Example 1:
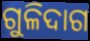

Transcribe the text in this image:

ଗୁଳିଦାଗ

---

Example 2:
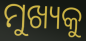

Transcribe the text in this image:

ମୁଖ୍ୟକୁ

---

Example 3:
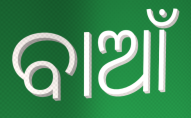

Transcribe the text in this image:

ବାଆଁ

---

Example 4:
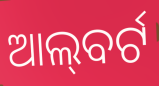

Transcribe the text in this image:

ଆଲ୍‌ବର୍ଟ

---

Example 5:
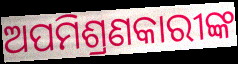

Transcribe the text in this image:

ଅପମିଶ୍ରଣକାରୀଙ୍କ